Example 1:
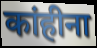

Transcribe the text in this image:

कांहीना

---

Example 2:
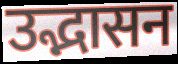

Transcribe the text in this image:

उद्भासन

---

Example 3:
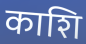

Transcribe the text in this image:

काशि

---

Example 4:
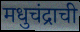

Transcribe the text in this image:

मधुचंद्राची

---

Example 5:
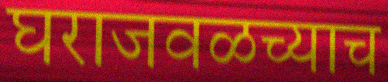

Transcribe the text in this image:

घराजवळच्याच